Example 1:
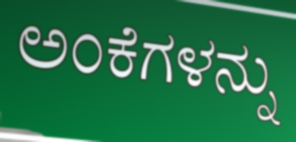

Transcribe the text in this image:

ಅಂಕೆಗಳನ್ನು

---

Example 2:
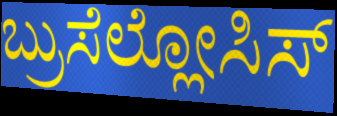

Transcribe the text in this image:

ಬ್ರುಸೆಲ್ಲೋಸಿಸ್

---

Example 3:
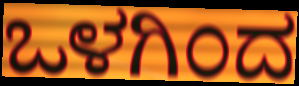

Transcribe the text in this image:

ಒಳಗಿಂದ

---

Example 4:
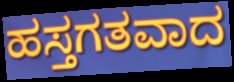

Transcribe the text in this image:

ಹಸ್ತಗತವಾದ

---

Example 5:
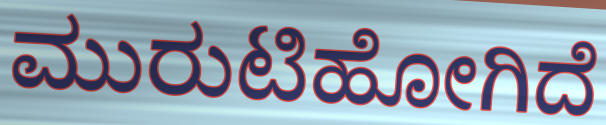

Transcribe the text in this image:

ಮುರುಟಿಹೋಗಿದೆ